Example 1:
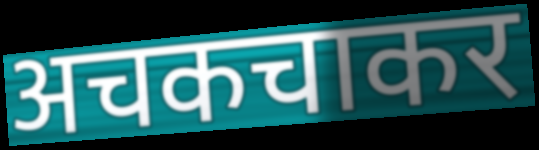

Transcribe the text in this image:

अचकचाकर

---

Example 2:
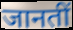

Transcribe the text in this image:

जानतीं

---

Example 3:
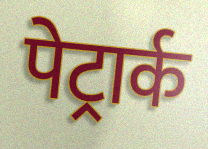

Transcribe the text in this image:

पेट्रार्क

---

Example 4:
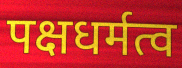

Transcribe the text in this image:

पक्षधर्मत्व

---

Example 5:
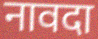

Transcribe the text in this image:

नावदा